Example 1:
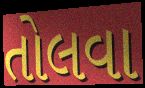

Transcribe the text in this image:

તોલવા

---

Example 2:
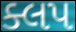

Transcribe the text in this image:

ક્લપ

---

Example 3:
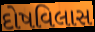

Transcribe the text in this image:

દોષવિલાસ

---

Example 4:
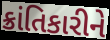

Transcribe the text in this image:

ક્રાંતિકારીને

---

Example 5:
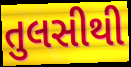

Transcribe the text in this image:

તુલસીથી